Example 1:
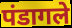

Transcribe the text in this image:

पंडागले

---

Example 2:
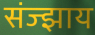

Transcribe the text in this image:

संज्झाय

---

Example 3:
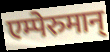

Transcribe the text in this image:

एम्पेरुमान्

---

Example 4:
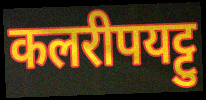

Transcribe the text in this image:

कलरीपयट्टु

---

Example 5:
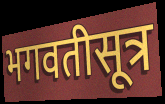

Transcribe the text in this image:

भगवतीसूत्र